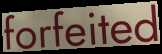
forfeited